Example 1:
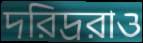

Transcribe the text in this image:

দরিদ্ররাও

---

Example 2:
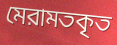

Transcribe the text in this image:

মেরামতকৃত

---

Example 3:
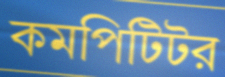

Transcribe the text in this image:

কমপিটিটর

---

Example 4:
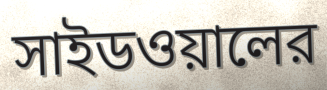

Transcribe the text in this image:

সাইডওয়ালের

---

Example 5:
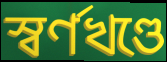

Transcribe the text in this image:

স্বর্ণখণ্ডে